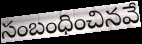
సంబంధించినవే